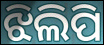
ଝିଲିପି